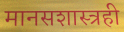
मानसशास्त्रही